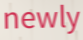
newly